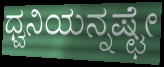
ಧ್ವನಿಯನ್ನಷ್ಟೇ